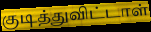
குடித்துவிட்டாள்